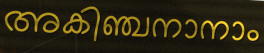
അകിഞ്ചനാനാം